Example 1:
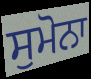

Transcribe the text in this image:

ਸੁਮੋਨਾ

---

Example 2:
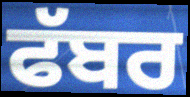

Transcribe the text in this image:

ਫੱਬਰ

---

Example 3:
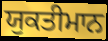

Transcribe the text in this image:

ਯੁਕਤੀਮਾਨ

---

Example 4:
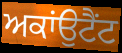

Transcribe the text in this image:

ਅਕਾਂਉਟੈਂਟ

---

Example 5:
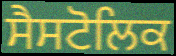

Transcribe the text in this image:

ਸੈਸਟੋਲਿਕ